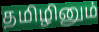
தமிழினும்